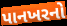
પાનખરનો